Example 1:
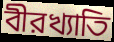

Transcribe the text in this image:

বীরখ্যাতি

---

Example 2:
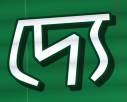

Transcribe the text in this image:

দ্যে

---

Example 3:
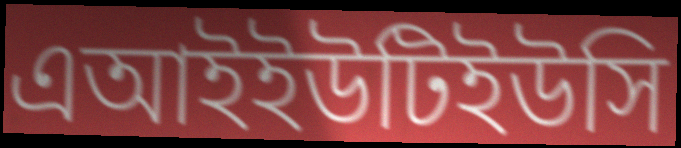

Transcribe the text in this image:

এআইইউটিইউসি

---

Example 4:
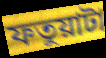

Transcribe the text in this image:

ফতুয়াটা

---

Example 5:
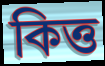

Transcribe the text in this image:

কিত্ত